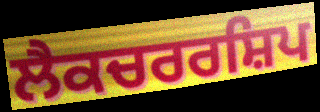
ਲੈਕਚਰਰਸ਼ਿਪ